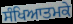
ਸੰਖਿਆਤਮਕੇ